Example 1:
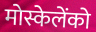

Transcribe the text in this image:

मोस्केलेंको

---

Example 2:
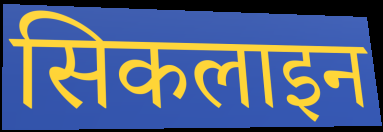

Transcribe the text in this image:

सिकलाइन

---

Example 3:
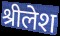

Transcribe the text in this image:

श्रीलेश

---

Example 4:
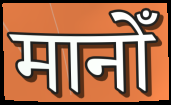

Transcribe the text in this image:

मानोँ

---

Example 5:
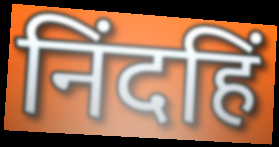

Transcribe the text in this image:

निंदहिं